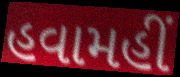
હવામહીં